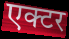
एक्टर